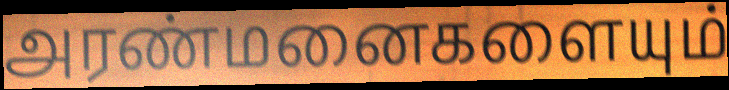
அரண்மனைகளையும்